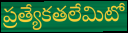
ప్రత్యేకతలేమిటో